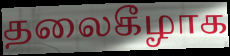
தலைகீழாக